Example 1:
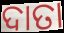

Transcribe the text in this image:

ଦାତା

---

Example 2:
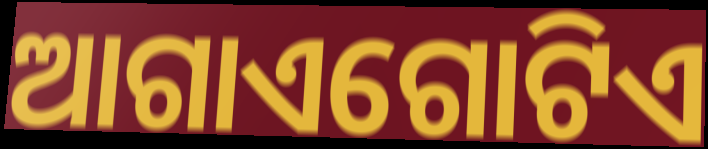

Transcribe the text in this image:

ଆଗାଏଗୋଟିଏ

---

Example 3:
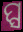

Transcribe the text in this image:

ପ୍ସ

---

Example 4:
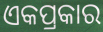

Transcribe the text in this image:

ଏକପ୍ରକାର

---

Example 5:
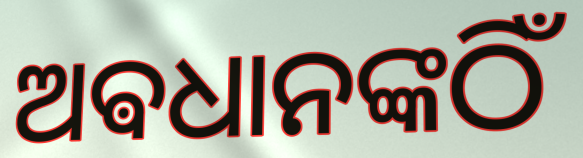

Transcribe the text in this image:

ଅଵଧାନଙ୍କଠିଁ